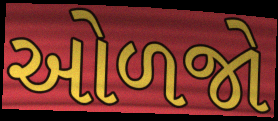
ઓળજો